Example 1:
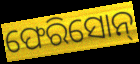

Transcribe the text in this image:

ଫେରିସୋନ୍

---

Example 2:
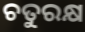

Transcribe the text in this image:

ଚତୁରକ୍ଷ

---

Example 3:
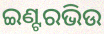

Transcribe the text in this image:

ଇଣ୍ଟରଭିଉ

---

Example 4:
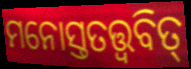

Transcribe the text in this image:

ମନୋସ୍ତତତ୍ତ୍ୱବିତ୍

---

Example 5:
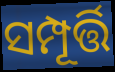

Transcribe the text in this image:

ସମ୍ପୂର୍ତ୍ତି